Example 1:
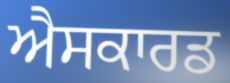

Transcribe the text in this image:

ਐਸਕਾਰਡ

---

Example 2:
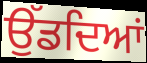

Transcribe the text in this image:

ਉੱਡਦਿਆਂ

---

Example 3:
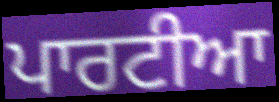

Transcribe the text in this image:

ਪਾਰਟੀਆ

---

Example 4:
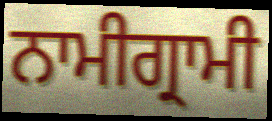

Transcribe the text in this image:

ਨਾਮੀਗ੍ਰਾਮੀ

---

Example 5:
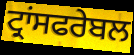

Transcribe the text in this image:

ਟ੍ਰਾਂਸਫਰੇਬਲ